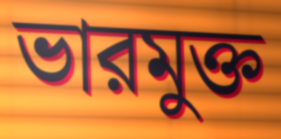
ভারমুক্ত